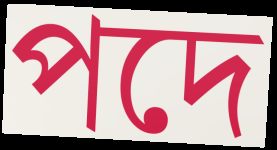
পদে